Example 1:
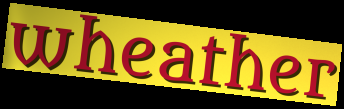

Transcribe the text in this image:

wheather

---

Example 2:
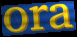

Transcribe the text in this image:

ora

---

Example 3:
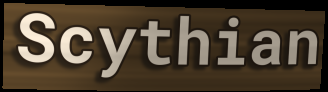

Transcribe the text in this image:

Scythian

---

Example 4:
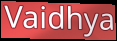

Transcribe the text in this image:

Vaidhya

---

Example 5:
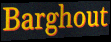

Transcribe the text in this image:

Barghout